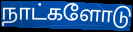
நாட்களோடு